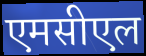
एमसीएल